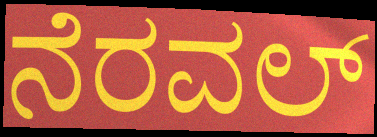
ನೆರವಲ್